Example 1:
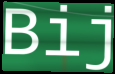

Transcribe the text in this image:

Bij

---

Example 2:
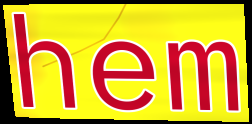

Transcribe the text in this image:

hem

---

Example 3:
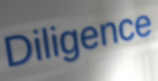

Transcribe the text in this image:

Diligence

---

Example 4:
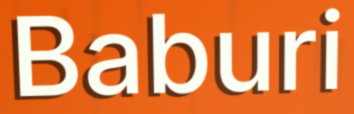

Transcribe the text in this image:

Baburi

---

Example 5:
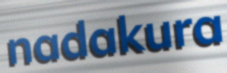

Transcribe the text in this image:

nadakura